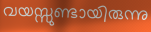
വയസ്സുണ്ടായിരുന്നു